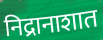
निद्रानाशात